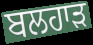
ਬਲਹਾੜ